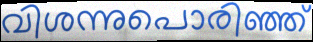
വിശന്നുപൊരിഞ്ഞ്